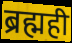
ब्रह्मही